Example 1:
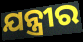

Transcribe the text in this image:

ଯନ୍ତ୍ରୀର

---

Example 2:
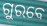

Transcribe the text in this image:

ଗୁରବେ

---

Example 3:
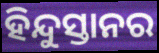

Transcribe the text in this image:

ହିନ୍ଦୁସ୍ତାନର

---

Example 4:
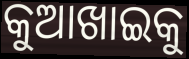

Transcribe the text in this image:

କୁଆଖାଇକୁ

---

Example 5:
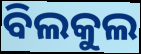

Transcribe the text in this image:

ବିଲକୁଲ